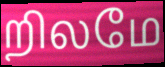
றிலமே